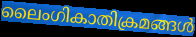
ലൈംഗികാതിക്രമങ്ങൾ